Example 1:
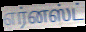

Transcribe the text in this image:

எர்னஸ்ட்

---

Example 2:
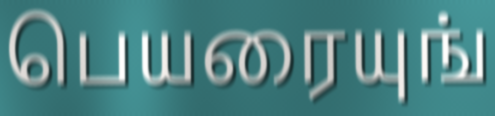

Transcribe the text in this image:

பெயரையுங்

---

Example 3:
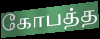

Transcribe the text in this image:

கோபத்த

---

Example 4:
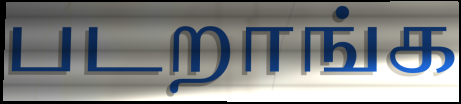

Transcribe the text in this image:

படறாங்க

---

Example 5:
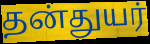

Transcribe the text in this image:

தன்துயர்